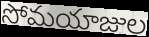
సోమయాజుల